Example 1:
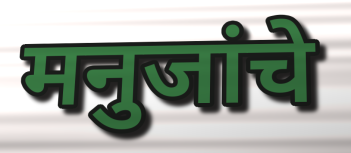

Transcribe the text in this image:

मनुजांचे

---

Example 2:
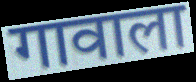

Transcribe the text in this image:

गावाला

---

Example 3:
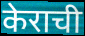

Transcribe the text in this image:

केराची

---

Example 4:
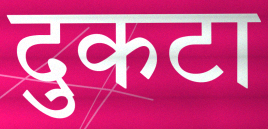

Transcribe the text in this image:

दुकटा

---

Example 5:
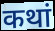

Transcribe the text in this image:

कथां